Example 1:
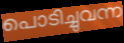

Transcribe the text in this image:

പൊടിച്ചുവന്ന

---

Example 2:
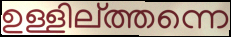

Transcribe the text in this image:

ഉള്ളില്ത്തന്നെ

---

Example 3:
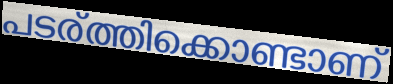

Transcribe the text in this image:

പടര്ത്തിക്കൊണ്ടാണ്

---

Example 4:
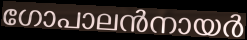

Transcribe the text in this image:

ഗോപാലൻനായർ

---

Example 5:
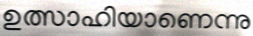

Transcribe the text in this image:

ഉത്സാഹിയാണെന്നു